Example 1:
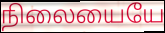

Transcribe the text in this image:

நிலையையே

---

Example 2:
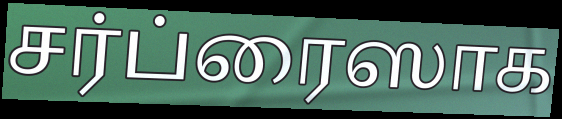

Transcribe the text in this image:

சர்ப்ரைஸாக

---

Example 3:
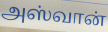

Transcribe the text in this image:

அஸ்வான்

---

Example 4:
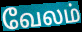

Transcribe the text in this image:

வேலம்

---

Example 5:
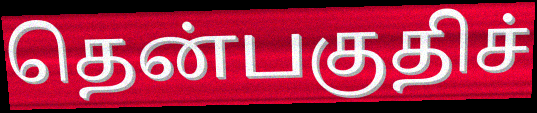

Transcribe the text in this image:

தென்பகுதிச்